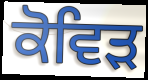
ਕੋਵਿਡ਼